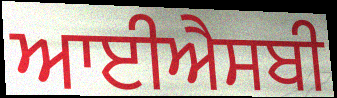
ਆਈਐਸਬੀ